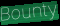
Bounty